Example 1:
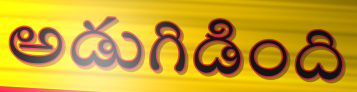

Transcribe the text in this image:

అడుగిడింది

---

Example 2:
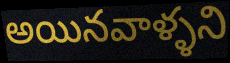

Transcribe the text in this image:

అయినవాళ్ళని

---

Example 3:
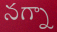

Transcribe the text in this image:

నగ్నా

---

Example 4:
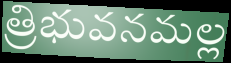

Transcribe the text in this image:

త్రిభువనమల్ల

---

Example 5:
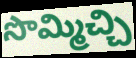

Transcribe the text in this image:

సొమ్మిచ్చి